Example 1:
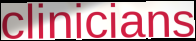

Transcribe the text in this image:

clinicians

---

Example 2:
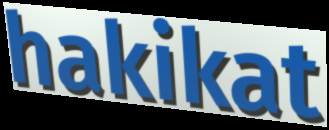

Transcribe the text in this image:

hakikat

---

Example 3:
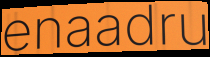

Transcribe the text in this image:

enaadru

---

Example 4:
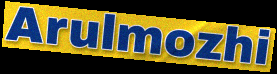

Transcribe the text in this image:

Arulmozhi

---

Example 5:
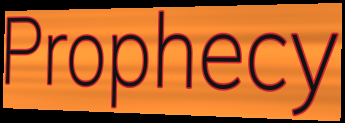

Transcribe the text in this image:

Prophecy